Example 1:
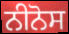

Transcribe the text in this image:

ਨੀਨੋਸ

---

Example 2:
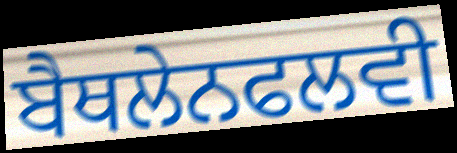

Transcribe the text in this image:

ਬੈਥਲੇਨਫਲਵੀ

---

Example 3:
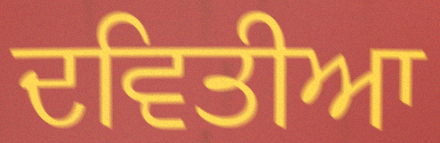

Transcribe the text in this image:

ਦਵਿਤੀਆ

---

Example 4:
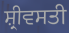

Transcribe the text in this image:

ਸ਼੍ਰੀਵਸਤੀ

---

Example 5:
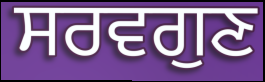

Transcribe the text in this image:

ਸਰਵਗੁਣ